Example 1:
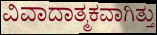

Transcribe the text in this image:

ವಿವಾದಾತ್ಮಕವಾಗಿತ್ತು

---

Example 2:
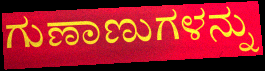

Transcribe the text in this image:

ಗುಣಾಣುಗಳನ್ನು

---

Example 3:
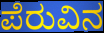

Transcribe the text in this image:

ಪೆರುವಿನ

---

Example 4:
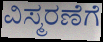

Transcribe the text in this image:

ವಿಸ್ಮರಣೆಗೆ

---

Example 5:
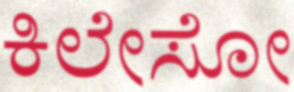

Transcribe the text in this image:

ಕಿಲೇಸೋ